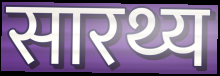
सारथ्य